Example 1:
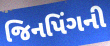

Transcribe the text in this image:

જિનપિંગની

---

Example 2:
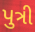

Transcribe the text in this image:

પુત્રી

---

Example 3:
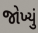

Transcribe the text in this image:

જોખ્યું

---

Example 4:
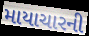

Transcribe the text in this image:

માયાચારની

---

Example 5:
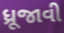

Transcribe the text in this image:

ધ્રૂજાવી